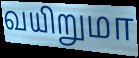
வயிறுமா